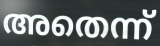
അതെന്ന്